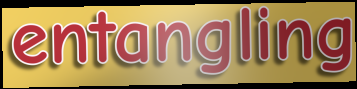
entangling